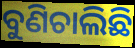
ବୁଣିଚାଲିଛି